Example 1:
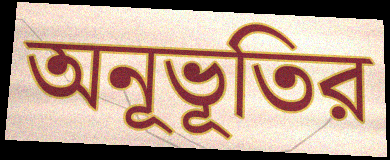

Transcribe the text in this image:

অনূভূতির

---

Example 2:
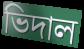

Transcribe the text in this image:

ভিদাল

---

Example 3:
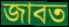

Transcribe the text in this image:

জাবত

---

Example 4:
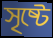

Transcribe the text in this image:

সৃষ্টে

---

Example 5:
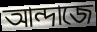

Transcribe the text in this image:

আন্দাজে